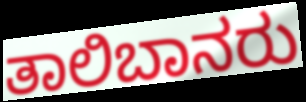
ತಾಲಿಬಾನರು